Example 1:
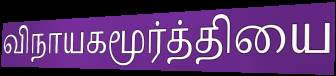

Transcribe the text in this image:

விநாயகமூர்த்தியை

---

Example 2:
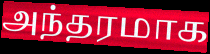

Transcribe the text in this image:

அந்தரமாக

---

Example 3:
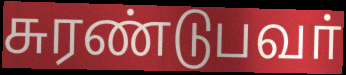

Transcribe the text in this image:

சுரண்டுபவர்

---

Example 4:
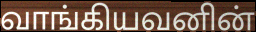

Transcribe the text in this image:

வாங்கியவனின்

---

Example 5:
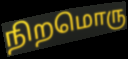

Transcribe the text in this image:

நிறமொரு